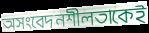
অসংবেদনশীলতাকেই